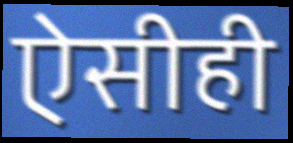
ऐसीही